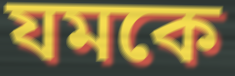
যমকে